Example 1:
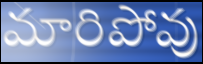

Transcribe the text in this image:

మారిపోవు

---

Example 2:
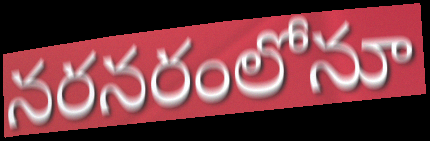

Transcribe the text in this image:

నరనరంలోనూ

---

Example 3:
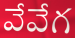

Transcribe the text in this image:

వేవేగ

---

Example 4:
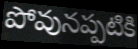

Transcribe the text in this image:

పోవునప్పటికి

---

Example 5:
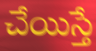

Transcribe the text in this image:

చేయిస్తే